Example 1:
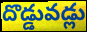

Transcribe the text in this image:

దొడ్డువడ్లు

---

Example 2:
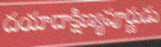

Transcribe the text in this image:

దయాదాక్షిణ్యపూర్ణుడు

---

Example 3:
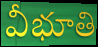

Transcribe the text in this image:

వీభూతి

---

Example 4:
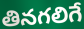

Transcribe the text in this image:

తినగలిగే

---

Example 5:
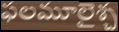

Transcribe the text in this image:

ఫలమూలైశ్చ